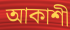
আকাশী